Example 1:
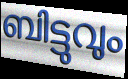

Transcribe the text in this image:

ബിട്ടുവും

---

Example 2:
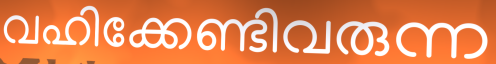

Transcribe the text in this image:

വഹിക്കേണ്ടിവരുന്ന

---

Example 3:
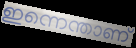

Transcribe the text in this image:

ഇന്നെന്താണ്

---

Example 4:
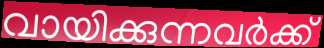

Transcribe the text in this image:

വായിക്കുന്നവർക്ക്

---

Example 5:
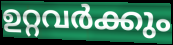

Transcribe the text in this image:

ഉറ്റവർക്കും